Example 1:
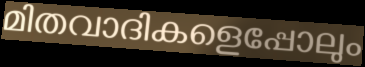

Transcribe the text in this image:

മിതവാദികളെപ്പോലും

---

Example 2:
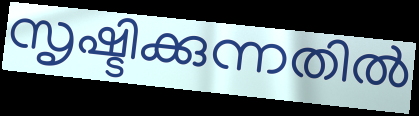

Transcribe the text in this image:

സൃഷ്ടിക്കുന്നതിൽ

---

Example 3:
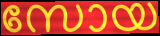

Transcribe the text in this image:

സോയ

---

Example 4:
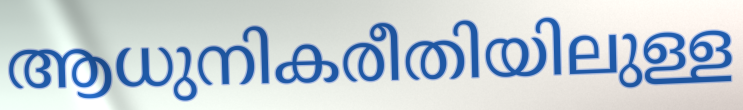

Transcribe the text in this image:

ആധുനികരീതിയിലുള്ള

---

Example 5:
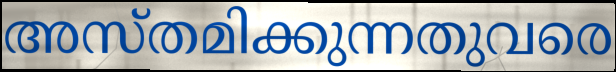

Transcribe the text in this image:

അസ്തമിക്കുന്നതുവരെ